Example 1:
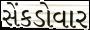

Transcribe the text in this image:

સેંકડોવાર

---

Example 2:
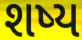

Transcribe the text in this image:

શષ્ય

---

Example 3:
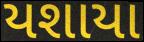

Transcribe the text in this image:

યશાયા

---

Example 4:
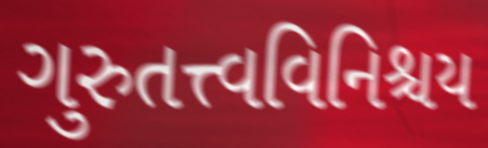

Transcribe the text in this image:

ગુરુતત્ત્વવિનિશ્ચય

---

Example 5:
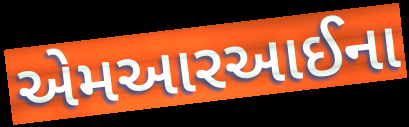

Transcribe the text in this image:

એમઆરઆઈના